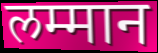
लम्मान